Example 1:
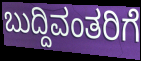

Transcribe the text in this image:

ಬುದ್ದಿವಂತರಿಗೆ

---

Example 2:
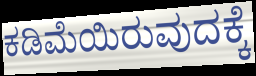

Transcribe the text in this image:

ಕಡಿಮೆಯಿರುವುದಕ್ಕೆ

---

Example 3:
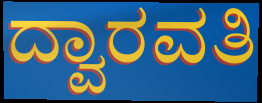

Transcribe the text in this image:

ದ್ವಾರವತಿ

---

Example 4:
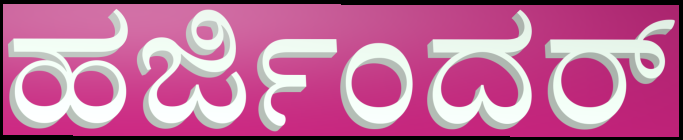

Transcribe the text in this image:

ಹರ್ಜಿಂದರ್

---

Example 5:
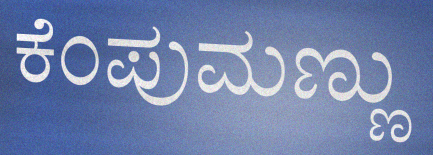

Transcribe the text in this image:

ಕೆಂಪುಮಣ್ಣು